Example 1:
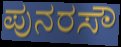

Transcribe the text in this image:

ಪುನರಸೌ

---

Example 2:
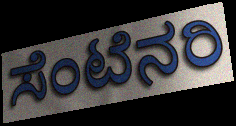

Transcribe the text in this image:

ಸೆಂಟೆನರಿ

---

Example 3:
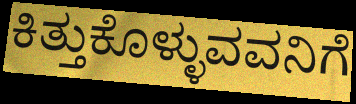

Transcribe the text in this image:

ಕಿತ್ತುಕೊಳ್ಳುವವನಿಗೆ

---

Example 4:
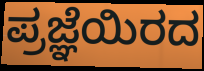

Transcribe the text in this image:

ಪ್ರಜ್ಞೆಯಿರದ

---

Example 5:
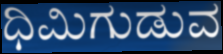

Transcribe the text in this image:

ಧಿಮಿಗುಡುವ